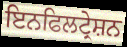
ਇਨਫਿਲਟ੍ਰੇਸ਼ਨ